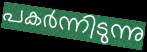
പകർന്നിടുന്നു